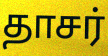
தாசர்